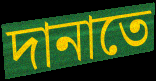
দানাতে